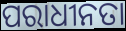
ପରାଧୀନତା